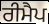
ਰੀਮੈਪ